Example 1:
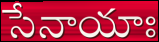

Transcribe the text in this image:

సేనాయాః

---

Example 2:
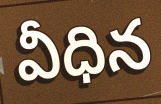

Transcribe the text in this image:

వీధిన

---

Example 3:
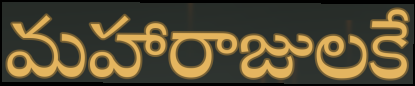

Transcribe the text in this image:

మహారాజులకే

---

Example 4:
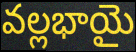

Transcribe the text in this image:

వల్లభాయై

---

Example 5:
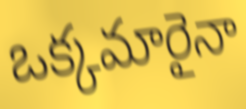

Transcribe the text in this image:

ఒక్కమారైనా